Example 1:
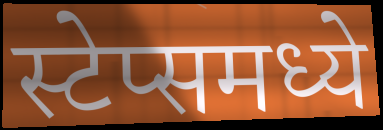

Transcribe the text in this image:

स्टेप्समध्ये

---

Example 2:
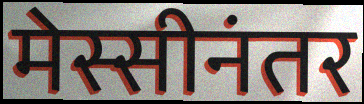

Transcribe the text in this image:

मेस्सीनंतर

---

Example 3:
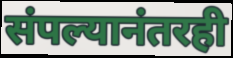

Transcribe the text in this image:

संपल्यानंतरही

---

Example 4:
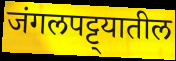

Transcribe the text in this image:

जंगलपट्ट्यातील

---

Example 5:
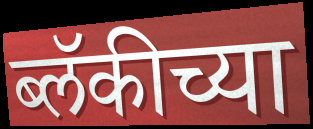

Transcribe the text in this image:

ब्लॅकीच्या